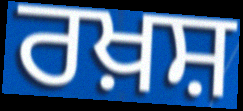
ਰਖ਼ਸ਼